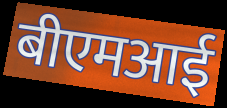
बीएमआई